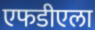
एफडीएला